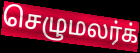
செழுமலர்க்